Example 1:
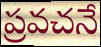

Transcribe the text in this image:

ప్రవచనే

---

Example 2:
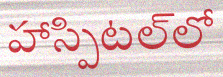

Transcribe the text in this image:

హాస్పిటల్‌లో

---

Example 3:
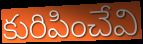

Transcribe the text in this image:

కురిపించేవి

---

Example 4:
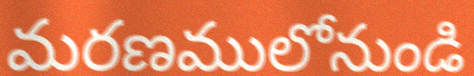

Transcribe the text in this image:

మరణములోనుండి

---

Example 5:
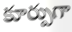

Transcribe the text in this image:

కూర్పుగా